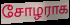
சோழராக